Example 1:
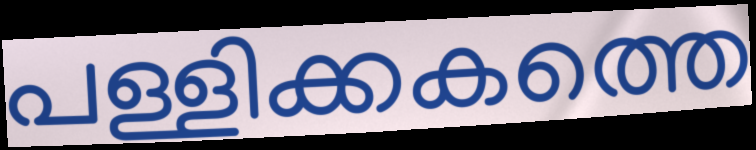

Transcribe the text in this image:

പള്ളിക്കകത്തെ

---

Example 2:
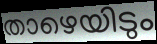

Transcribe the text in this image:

താഴെയിടും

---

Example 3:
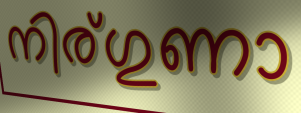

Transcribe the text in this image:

നിര്ഗുണാ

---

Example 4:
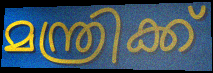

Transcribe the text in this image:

മന്ത്രിക്ക്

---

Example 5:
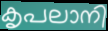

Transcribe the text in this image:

കൃപലാനി